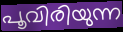
പൂവിരിയുന്ന